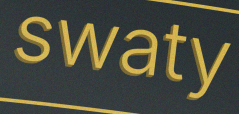
swaty